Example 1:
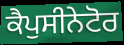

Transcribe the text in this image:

ਕੈਪੁਸੀਨੇਟੋਰ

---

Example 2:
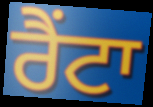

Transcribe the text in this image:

ਰੈਂਟਾ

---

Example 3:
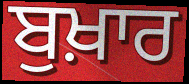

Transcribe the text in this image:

ਬੁਖ਼ਾਰ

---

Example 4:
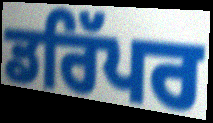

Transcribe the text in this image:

ਡਰਿੱਪਰ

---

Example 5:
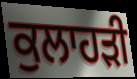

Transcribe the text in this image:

ਕੁਲਾਹੜੀ